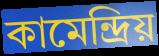
কামেন্দ্রিয়